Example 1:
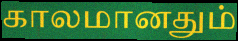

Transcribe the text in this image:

காலமானதும்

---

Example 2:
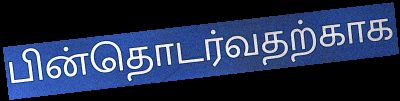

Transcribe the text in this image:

பின்தொடர்வதற்காக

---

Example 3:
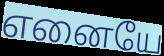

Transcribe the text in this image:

எனையே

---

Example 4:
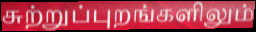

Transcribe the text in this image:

சுற்றுப்புறங்களிலும்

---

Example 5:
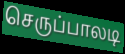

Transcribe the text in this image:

செருப்பாலடி